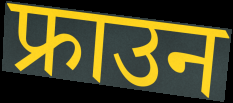
फ्राउन